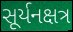
સૂર્યનક્ષત્ર